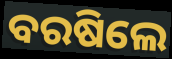
ବରଷିଲେ